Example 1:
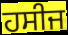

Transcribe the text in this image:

ਹਸੀਜ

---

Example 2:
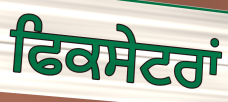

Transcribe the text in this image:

ਫਿਕਸੇਟਰਾਂ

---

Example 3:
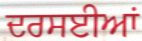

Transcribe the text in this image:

ਦਰਸਈਆਂ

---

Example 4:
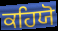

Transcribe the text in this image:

ਕਹਿਯੋ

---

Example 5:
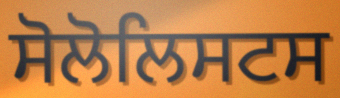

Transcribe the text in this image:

ਸੋਲੋਲਿਸਟਸ